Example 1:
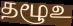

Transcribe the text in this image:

தழூஉ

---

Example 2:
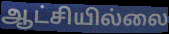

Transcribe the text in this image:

ஆட்சியில்லை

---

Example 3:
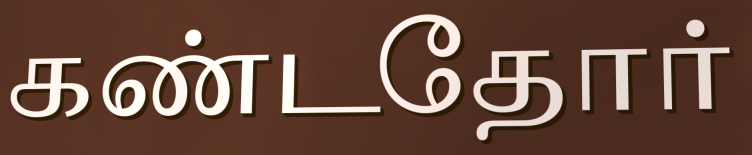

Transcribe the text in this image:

கண்டதோர்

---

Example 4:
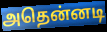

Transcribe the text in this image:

அதென்னடி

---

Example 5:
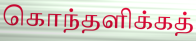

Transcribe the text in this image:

கொந்தளிக்கத்